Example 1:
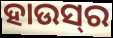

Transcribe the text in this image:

ହାଉସ୍‌ର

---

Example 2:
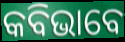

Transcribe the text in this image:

କବିଭାବେ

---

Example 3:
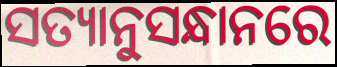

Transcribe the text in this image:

ସତ୍ୟାନୁସନ୍ଧାନରେ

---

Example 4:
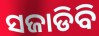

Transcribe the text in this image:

ସଜାଡିବି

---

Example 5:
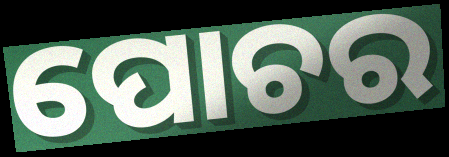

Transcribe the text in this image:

ପୋଚର